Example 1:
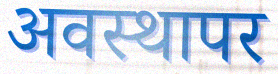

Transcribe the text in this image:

अवस्थापर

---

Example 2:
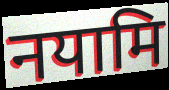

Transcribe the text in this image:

नयामि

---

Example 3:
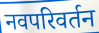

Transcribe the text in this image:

नवपरिवर्तन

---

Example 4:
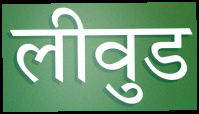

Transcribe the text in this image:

लीवुड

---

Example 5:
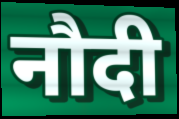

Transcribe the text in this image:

नौदी